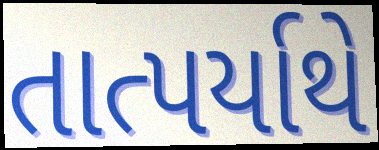
તાત્પર્યાથે